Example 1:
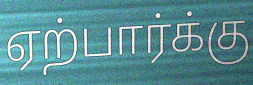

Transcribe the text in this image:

ஏற்பார்க்கு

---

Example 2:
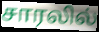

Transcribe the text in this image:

சாரலில்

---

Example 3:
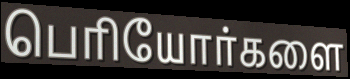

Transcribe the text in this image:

பெரியோர்களை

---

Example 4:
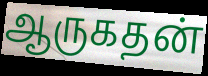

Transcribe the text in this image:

ஆருகதன்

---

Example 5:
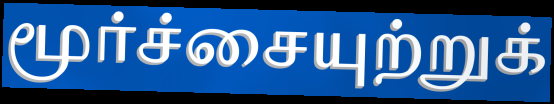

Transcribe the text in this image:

மூர்ச்சையுற்றுக்